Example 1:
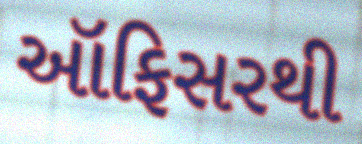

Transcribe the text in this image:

ઑફિસરથી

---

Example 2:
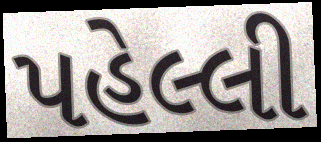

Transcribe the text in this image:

પહેલ્લી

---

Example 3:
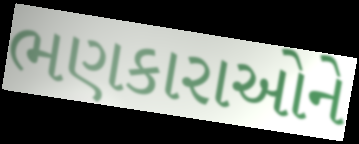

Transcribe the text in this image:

ભણકારાઓને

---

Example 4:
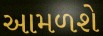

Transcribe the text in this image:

આમળશે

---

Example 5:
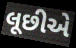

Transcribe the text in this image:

લૂછીએ